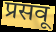
प्रसवू